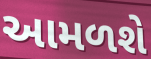
આમળશે